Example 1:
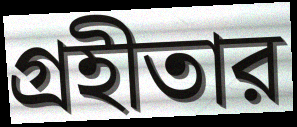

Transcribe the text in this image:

গ্রহীতার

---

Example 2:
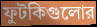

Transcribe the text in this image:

ফুটকিগুলোর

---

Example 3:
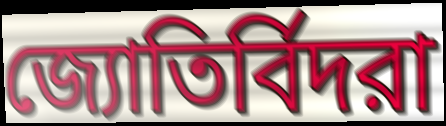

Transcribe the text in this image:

জ্যোতির্বিদরা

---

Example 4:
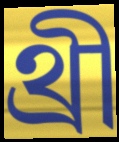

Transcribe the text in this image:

থ্রী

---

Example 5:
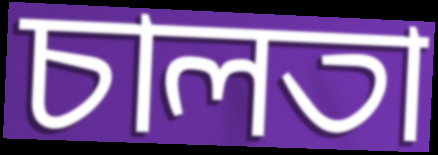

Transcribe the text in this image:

চালতা